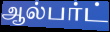
ஆல்பர்ட்